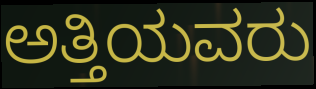
ಅತ್ತಿಯವರು